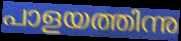
പാളയത്തിന്നു